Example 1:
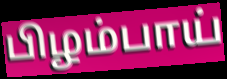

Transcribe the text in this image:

பிழம்பாய்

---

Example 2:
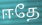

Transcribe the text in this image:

ஈதே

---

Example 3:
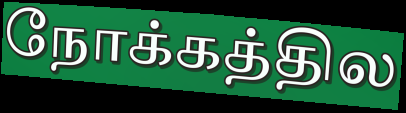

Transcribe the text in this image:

நோக்கத்தில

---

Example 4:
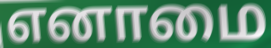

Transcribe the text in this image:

எனாமை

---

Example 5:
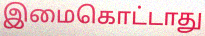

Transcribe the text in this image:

இமைகொட்டாது